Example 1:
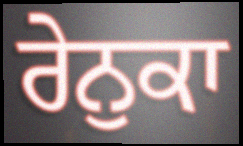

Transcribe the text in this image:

ਰੇਨੁਕਾ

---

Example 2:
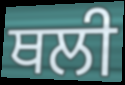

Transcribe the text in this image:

ਥਲੀ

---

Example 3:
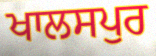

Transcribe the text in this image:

ਖਾਲਸਪੁਰ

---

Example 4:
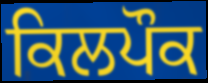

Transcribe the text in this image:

ਕਿਲਪੌਕ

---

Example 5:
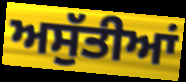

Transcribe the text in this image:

ਅਸੁੱਤੀਆਂ